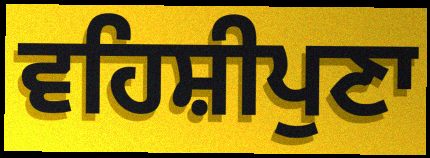
ਵਹਿਸ਼ੀਪੁਣਾ